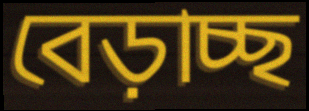
বেড়াচ্ছ